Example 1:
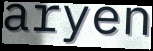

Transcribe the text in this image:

aryen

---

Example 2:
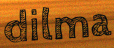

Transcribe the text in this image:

dilma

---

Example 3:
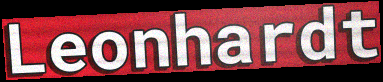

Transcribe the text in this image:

Leonhardt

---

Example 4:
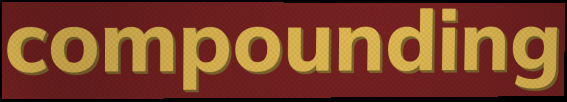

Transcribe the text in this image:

compounding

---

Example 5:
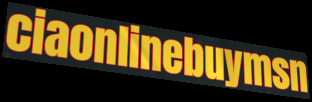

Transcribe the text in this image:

ciaonlinebuymsn